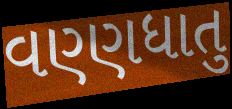
વણ્ણધાતુ